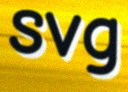
svg